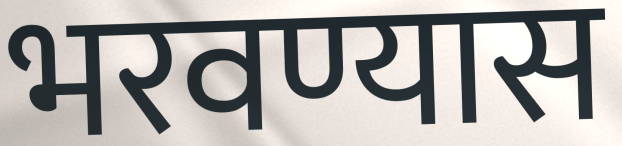
भरवण्यास